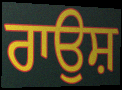
ਰਾਉਸ਼